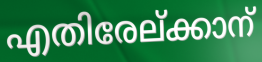
എതിരേല്ക്കാന്